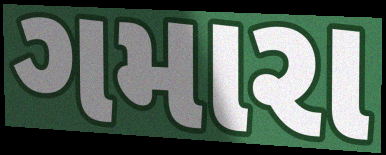
ગમારા